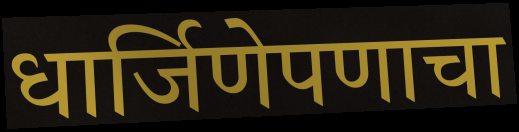
धार्जिणेपणाचा